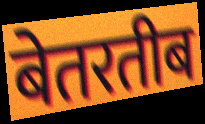
बेतरतीब